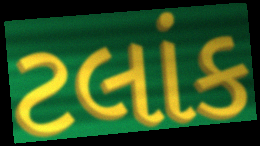
ટલાંક